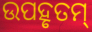
ଉପହୃତମ୍